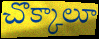
చొక్కాలూ